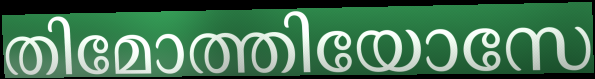
തിമോത്തിയോസേ